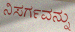
ನಿಸರ್ಗವನ್ನು